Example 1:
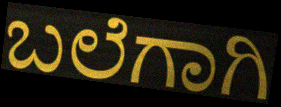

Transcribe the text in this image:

ಬಲೆಗಾಗಿ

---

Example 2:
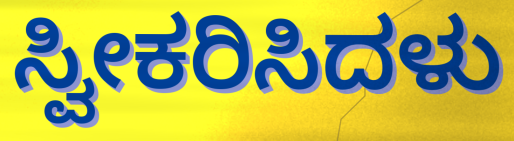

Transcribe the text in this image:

ಸ್ವೀಕರಿಸಿದಳು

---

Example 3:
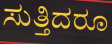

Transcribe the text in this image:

ಸುತ್ತಿದರೂ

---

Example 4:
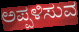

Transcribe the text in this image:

ಅಪ್ಪಳಿಸುವ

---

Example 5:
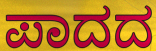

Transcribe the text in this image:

ಪಾದದ